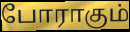
போராகும்